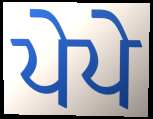
ਪੇਪੇ